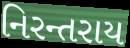
નિરન્તરાય